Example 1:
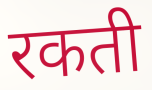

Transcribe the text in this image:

रकती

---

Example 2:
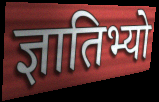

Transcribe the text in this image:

ज्ञातिभ्यो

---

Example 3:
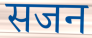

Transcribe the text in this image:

सजन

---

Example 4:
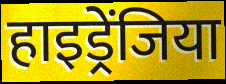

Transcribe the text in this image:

हाइड्रेंजिया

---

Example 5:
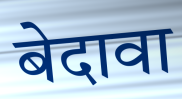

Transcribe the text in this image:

बेदावा